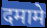
दमामे